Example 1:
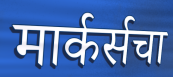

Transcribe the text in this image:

मार्कर्सचा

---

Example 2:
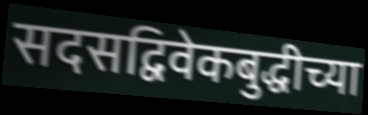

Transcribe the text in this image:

सदसद्विवेकबुद्धीच्या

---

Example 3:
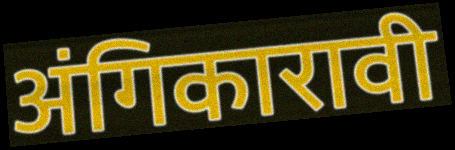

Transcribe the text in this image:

अंगिकारावी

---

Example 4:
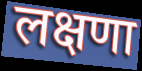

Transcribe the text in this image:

लक्षणा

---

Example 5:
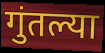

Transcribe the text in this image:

गुंतल्या